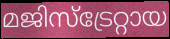
മജിസ്ട്രേറ്റായ